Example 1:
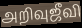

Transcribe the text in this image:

அறிவுஜீவி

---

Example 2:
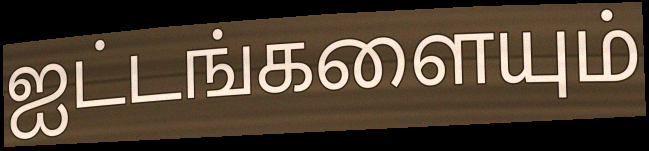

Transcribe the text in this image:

ஐட்டங்களையும்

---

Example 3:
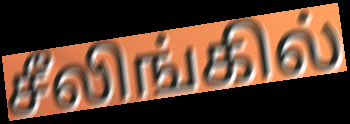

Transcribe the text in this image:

சீலிங்கில்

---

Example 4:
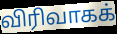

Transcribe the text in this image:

விரிவாகக்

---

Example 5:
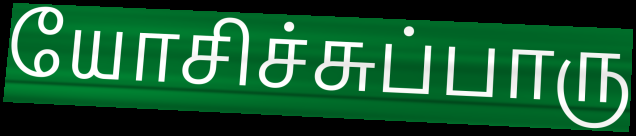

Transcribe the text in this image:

யோசிச்சுப்பாரு